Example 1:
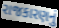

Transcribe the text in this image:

રાજકારણનું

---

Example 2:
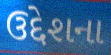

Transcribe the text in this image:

ઉદ્દેશના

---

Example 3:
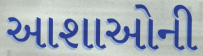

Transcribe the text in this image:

આશાઓની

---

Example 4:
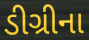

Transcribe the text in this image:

ડીગ્રીના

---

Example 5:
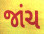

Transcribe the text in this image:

જાંચ